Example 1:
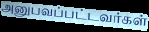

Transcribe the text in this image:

அனுபவப்பட்டவர்கள்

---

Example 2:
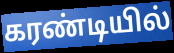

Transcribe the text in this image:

கரண்டியில்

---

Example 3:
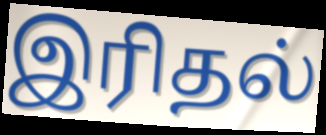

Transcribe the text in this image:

இரிதல்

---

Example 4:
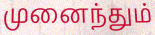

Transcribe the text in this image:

முனைந்தும்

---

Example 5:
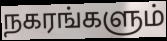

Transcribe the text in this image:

நகரங்களும்